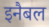
इनैबल